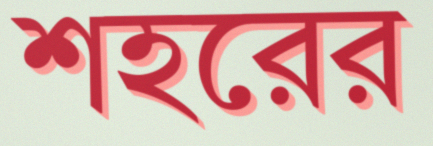
শহরের